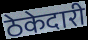
ठेकेदारी